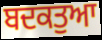
ਬਦਕਤੁਆ